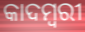
କାଦମ୍ୱରୀ